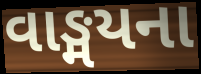
વાઙ્મયના